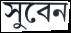
সুবেন